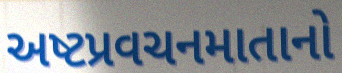
અષ્ટપ્રવચનમાતાનો